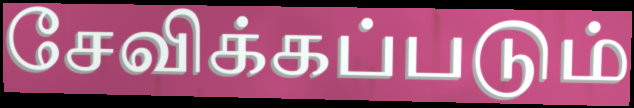
சேவிக்கப்படும்